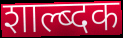
शाल्ब्दक